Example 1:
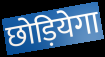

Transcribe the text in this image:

छोड़ियेगा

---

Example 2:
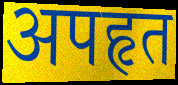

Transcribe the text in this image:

अपहृत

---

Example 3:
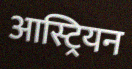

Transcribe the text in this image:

आस्ट्रियन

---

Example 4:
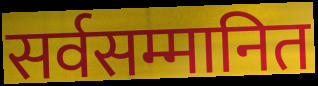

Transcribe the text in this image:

सर्वसम्मानित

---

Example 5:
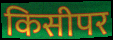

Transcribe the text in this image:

किसीपर